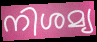
നിശമ്യ